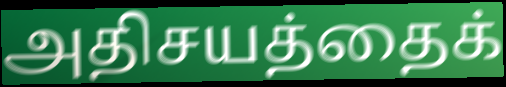
அதிசயத்தைக்